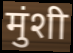
मुंशी